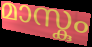
മാസ്കും